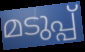
മടുപ്പ്